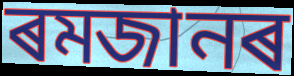
ৰমজানৰ